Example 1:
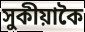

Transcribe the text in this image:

সুকীয়াকৈ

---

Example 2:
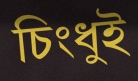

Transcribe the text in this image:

চিংধুই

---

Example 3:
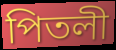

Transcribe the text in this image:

পিতলী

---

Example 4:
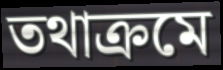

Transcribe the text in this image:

তথাক্ৰমে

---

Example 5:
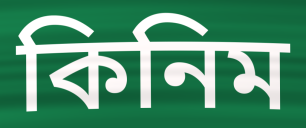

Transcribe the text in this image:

কিনিম